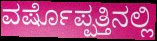
ವರ್ಷೊಪ್ಪತ್ತಿನಲ್ಲಿ